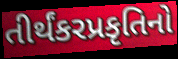
તીર્થંકરપ્રકૃતિનો